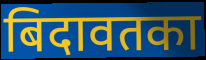
बिदावतका